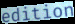
edition